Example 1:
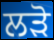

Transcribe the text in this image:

ਲੜੋ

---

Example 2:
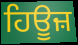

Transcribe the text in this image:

ਹਿਊਜ਼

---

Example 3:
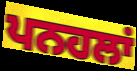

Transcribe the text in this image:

ਪਨਹਲਾਂ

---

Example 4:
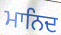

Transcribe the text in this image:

ਮਾਨਿਦ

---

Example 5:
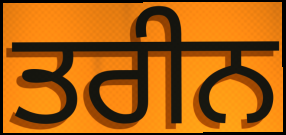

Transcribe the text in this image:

ਤਰੀਨ